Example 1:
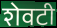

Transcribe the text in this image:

शेवटी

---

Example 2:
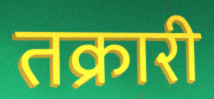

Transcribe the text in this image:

तक्रारी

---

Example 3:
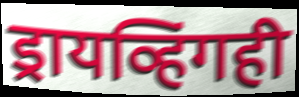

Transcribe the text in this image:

ड्रायव्हिंगही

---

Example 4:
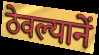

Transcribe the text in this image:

ठेवल्यानें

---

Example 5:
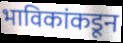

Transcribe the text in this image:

भाविकांकडून